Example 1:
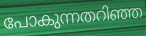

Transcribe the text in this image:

പോകുന്നതറിഞ്ഞ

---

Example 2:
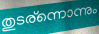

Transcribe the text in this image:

തുടര്ന്നൊന്നും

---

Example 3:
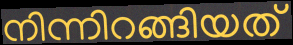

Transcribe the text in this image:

നിന്നിറങ്ങിയത്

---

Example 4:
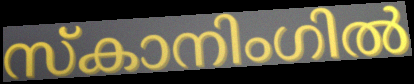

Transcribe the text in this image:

സ്കാനിംഗിൽ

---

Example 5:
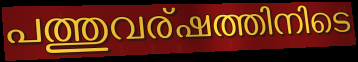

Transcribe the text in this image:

പത്തുവര്ഷത്തിനിടെ